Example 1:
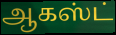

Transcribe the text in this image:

ஆகஸ்ட்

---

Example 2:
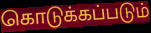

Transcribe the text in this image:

கொடுக்கப்படும்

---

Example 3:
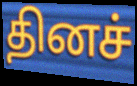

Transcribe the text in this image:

தினச்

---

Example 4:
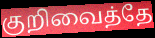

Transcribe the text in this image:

குறிவைத்தே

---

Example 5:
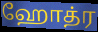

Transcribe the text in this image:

ஹோத்ர